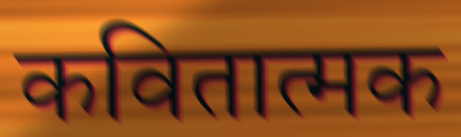
कवितात्मक